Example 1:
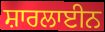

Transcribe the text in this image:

ਸ਼ਾਰਲਾਈਨ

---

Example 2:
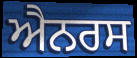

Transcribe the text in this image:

ਐਨਰਸ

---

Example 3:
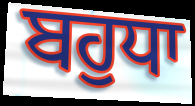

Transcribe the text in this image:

ਬਹੁਧਾ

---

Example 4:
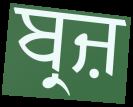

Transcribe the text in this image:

ਬ੍ਰਜ਼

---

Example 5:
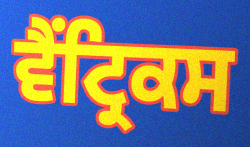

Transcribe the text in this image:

ਵੈਂਟ੍ਰਿਕਸ